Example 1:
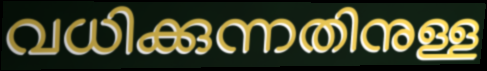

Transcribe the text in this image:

വധിക്കുന്നതിനുള്ള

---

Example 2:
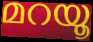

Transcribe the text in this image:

മറയൂ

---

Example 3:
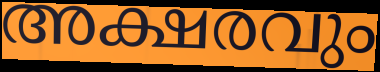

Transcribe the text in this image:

അക്ഷരവും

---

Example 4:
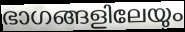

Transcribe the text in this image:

ഭാഗങ്ങളിലേയും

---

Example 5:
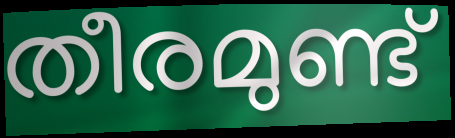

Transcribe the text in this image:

തീരമുണ്ട്